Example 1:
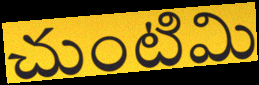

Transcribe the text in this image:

చుంటిమి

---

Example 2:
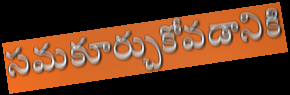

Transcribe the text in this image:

సమకూర్చుకోవడానికి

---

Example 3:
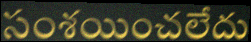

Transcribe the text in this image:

సంశయించలేదు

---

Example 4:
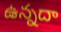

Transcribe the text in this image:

ఉన్నదా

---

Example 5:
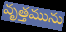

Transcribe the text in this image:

వృత్తమును